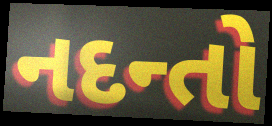
નદન્તો